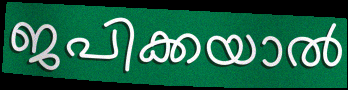
ജപിക്കയാൽ